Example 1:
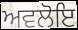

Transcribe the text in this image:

ਅਵਲੋਇ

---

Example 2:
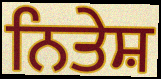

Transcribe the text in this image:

ਨਿਤੇਸ਼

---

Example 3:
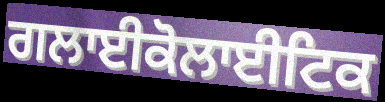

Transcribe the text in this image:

ਗਲਾਈਕੋਲਾਈਟਿਕ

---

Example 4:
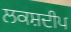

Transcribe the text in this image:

ਲਕਸ਼ਦੀਪ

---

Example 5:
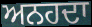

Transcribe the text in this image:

ਅਨਹਦਾ